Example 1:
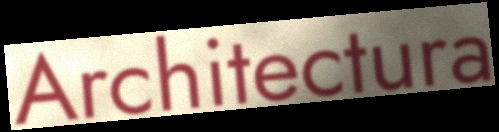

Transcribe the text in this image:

Architectura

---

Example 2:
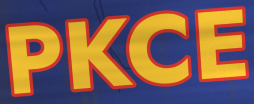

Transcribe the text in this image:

PKCE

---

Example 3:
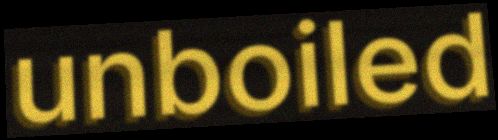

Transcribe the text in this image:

unboiled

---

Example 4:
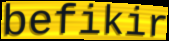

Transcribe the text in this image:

befikir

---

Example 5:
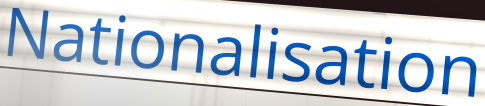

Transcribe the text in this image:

Nationalisation